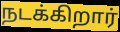
நடக்கிறார்